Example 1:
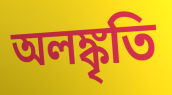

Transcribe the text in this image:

অলঙ্কৃতি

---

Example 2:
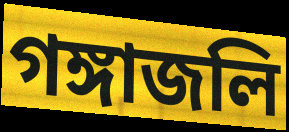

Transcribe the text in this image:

গঙ্গাজলি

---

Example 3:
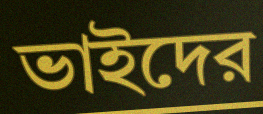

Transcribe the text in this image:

ভাইদের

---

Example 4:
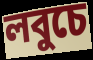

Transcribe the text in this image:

লবুচে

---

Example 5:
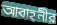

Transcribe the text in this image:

আবাহনীর